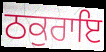
ਠਕੁਰਾਇ